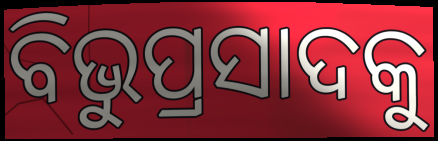
ବିଭୁପ୍ରସାଦକୁ